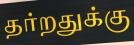
தர்றதுக்கு